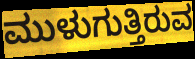
ಮುಳುಗುತ್ತಿರುವ